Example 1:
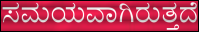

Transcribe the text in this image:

ಸಮಯವಾಗಿರುತ್ತದೆ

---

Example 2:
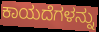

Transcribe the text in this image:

ಕಾಯದೆಗಳನ್ನು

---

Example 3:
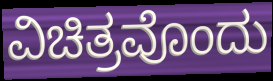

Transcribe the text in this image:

ವಿಚಿತ್ರವೊಂದು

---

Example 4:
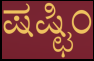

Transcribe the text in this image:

ಷಷ್ಟಿಂ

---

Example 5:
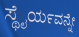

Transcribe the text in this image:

ಸ್ಥೈರ್ಯವನ್ನೇ